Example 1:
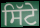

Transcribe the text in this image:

ਸਿੱਟੇ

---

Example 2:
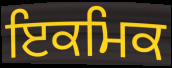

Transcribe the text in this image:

ਇਕਮਿਕ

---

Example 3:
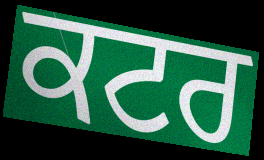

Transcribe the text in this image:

ਕਟਰ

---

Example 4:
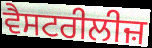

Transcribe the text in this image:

ਵੈਸਟਰੀਲੀਜ਼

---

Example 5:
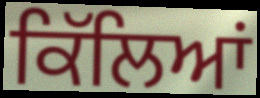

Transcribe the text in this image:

ਕਿੱਲਿਆਂ